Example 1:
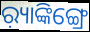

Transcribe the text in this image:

ର଼୍ୟାଙ୍କିଙ୍ଗ୍ରେ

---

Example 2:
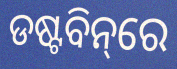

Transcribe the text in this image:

ଡଷ୍ଟବିନ୍‌ରେ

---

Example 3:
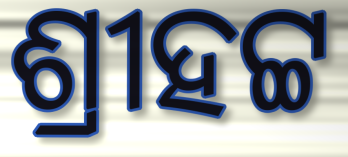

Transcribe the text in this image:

ଶ୍ରୀହଟ୍ଟ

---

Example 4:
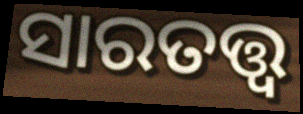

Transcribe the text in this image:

ସାରତତ୍ତ୍ୱ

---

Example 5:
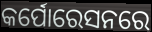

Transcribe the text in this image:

କର୍ପୋରେସନରେ